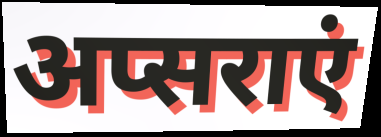
अप्सराएं